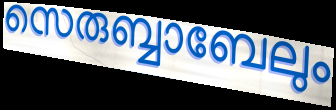
സെരുബ്ബാബേലും